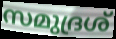
സമുദ്രശ്